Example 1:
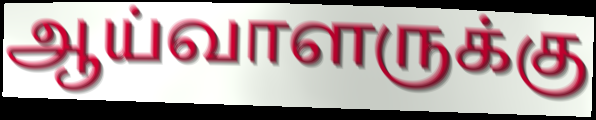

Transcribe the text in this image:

ஆய்வாளருக்கு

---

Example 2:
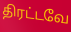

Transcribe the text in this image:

திரட்டவே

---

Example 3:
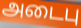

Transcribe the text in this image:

அடைபு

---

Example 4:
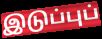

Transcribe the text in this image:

இடுப்புப்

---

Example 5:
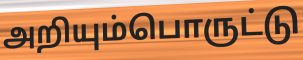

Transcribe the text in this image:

அறியும்பொருட்டு